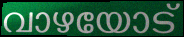
വാഴയോട്